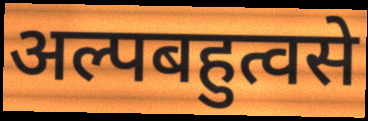
अल्पबहुत्वसे